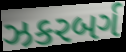
ઝકરબર્ગ